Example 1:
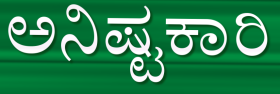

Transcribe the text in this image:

ಅನಿಷ್ಟಕಾರಿ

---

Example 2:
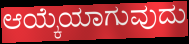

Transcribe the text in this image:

ಆಯ್ಕೆಯಾಗುವುದು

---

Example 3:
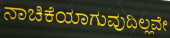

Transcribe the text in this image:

ನಾಚಿಕೆಯಾಗುವುದಿಲ್ಲವೇ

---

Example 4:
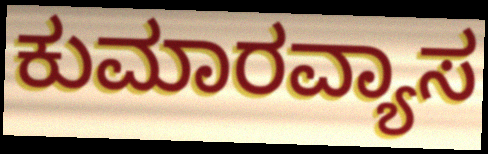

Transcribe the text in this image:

ಕುಮಾರವ್ಯಾಸ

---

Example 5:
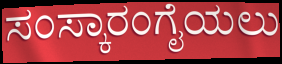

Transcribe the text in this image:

ಸಂಸ್ಕಾರಂಗೈಯಲು